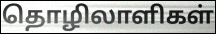
தொழிலாளிகள்